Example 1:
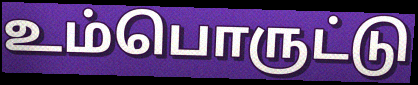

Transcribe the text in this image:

உம்பொருட்டு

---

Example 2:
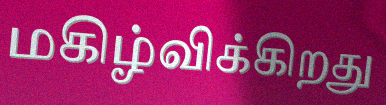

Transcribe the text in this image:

மகிழ்விக்கிறது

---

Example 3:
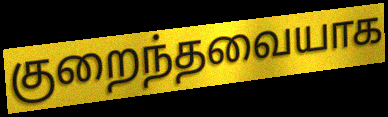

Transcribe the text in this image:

குறைந்தவையாக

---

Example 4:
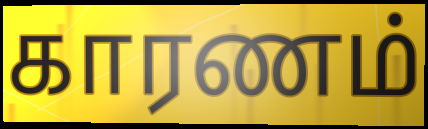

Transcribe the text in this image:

காரணம்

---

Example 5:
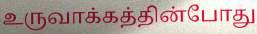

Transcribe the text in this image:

உருவாக்கத்தின்போது